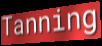
Tanning